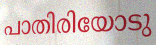
പാതിരിയോടു